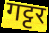
गट्टर